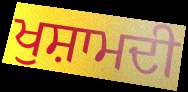
ਖੁਸ਼ਾਮਦੀ